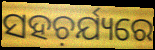
ସହଚ଼ର୍ଯ୍ୟରେ